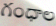
గంధాల